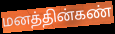
மனத்தின்கண்